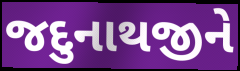
જદુનાથજીને